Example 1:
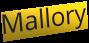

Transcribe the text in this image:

Mallory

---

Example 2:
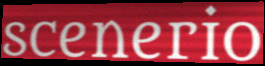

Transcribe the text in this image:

scenerio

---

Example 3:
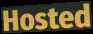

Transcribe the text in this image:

Hosted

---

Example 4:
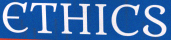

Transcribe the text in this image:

ETHICS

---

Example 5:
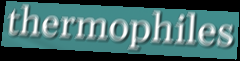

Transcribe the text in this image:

thermophiles